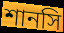
শানসি